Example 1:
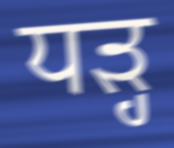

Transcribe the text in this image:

ਧੜ੍ਹ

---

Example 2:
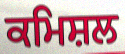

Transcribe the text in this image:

ਕਮਿਸ਼ਲ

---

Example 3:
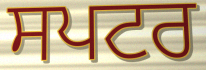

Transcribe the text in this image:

ਸਪਟਰ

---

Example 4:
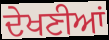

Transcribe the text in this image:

ਦੇਖਣੀਆਂ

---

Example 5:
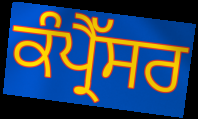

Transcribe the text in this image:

ਕੰਪ੍ਰੈੱਸਰ